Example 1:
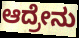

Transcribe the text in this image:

ಆದ್ರೇನು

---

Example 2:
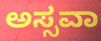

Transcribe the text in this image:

ಅಸ್ಸವಾ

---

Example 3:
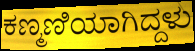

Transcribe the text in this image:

ಕಣ್ಮಣಿಯಾಗಿದ್ದಳು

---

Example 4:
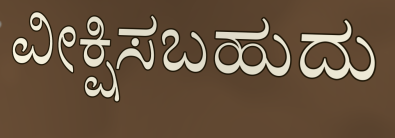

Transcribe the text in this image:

ವೀಕ್ಷಿಸಬಹುದು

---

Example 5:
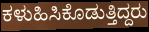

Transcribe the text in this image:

ಕಳುಹಿಸಿಕೊಡುತ್ತಿದ್ದರು